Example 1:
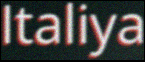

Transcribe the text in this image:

Italiya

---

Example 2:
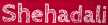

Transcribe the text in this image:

Shehadali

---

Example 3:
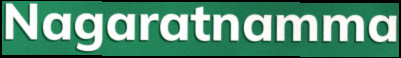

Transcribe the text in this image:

Nagaratnamma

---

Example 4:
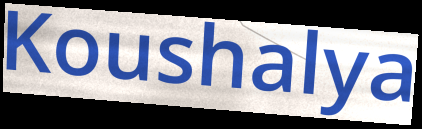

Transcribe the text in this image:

Koushalya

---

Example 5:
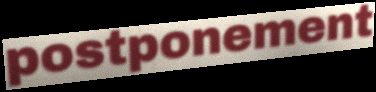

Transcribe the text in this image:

postponement